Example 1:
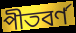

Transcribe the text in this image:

পীতবর্ণ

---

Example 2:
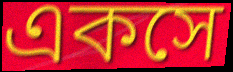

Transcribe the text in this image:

একসে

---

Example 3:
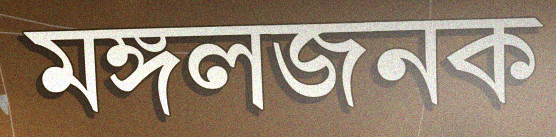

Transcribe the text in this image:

মঙ্গলজনক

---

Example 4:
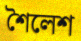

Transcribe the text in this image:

শৈলেশ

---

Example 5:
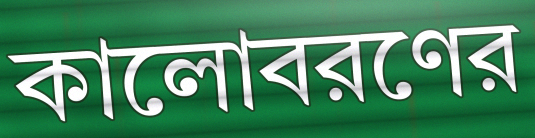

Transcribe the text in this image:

কালোবরণের